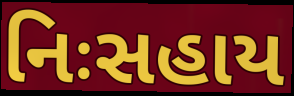
નિઃસહાય